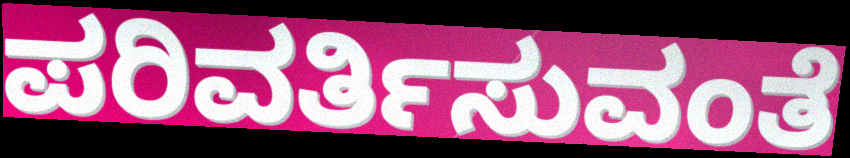
ಪರಿವರ್ತಿಸುವಂತೆ